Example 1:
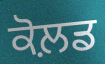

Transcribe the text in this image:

ਕੋਲ਼ਡ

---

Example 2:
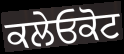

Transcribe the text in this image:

ਕਲੇਓਕੋਟ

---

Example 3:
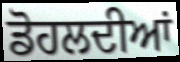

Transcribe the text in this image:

ਡੋਹਲਦੀਆਂ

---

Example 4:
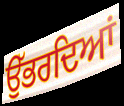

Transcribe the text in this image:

ਉੱਭਰਦਿਆਂ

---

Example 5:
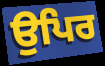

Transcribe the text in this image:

ਉਪਿਰ